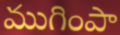
ముగింపా